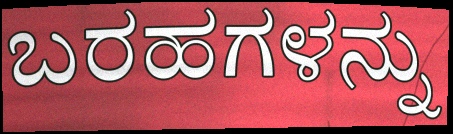
ಬರಹಗಳನ್ನು